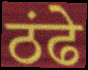
ठंढे